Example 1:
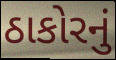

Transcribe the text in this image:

ઠાકોરનું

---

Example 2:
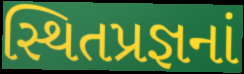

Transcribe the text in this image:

સ્થિતપ્રજ્ઞનાં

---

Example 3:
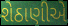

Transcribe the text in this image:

શેઠાણીએ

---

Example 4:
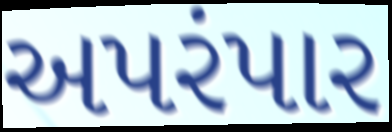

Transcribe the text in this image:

અપરંપાર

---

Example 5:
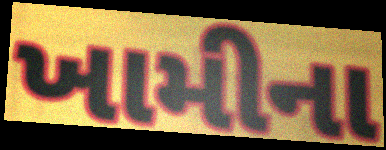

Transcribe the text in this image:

ખામીના